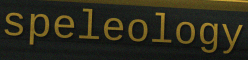
speleology